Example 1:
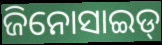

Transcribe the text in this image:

ଜିନୋସାଇଡ୍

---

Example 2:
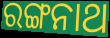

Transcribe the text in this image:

ରଙ୍ଗନାଥ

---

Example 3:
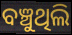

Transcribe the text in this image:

ବଞ୍ଚୁଥିଲି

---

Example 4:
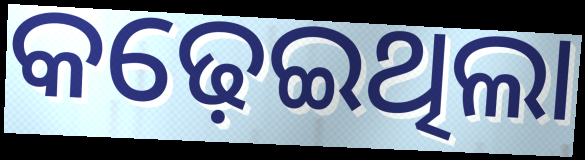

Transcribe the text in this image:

କଢ଼େଇଥିଲା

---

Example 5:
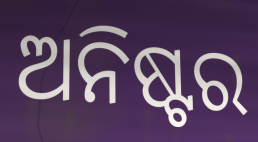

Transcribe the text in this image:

ଅନିଷ୍ଟର